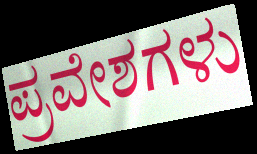
ಪ್ರವೇಶಗಳು